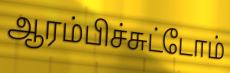
ஆரம்பிச்சுட்டோம்